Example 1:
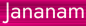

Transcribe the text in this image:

Jananam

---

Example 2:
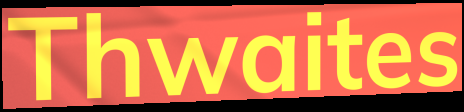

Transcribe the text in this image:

Thwaites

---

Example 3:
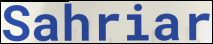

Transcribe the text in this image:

Sahriar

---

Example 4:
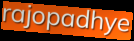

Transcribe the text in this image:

rajopadhye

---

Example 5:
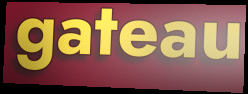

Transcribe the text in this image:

gateau